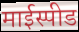
माईस्पीड